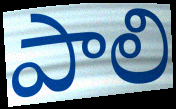
పాలి